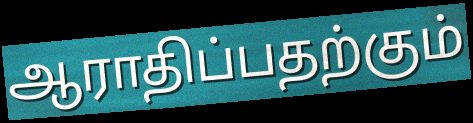
ஆராதிப்பதற்கும்